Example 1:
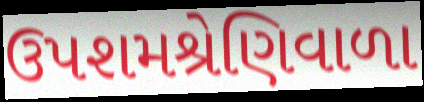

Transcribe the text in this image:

ઉપશમશ્રેણિવાળા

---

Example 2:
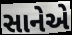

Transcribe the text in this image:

સાનેએ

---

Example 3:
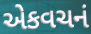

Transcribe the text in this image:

એકવચનં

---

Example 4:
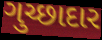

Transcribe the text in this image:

ગુચ્છાદાર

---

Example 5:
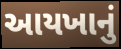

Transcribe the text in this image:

આયખાનું